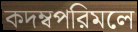
কদম্বপরিমলে